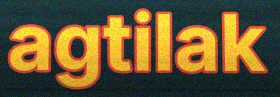
agtilak